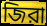
জিরা